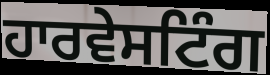
ਹਾਰਵੇਸਟਿੰਗ